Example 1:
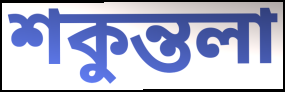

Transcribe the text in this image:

শকুন্তলা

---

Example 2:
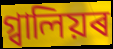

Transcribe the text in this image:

গ্বালিয়ৰ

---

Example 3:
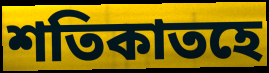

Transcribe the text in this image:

শতিকাতহে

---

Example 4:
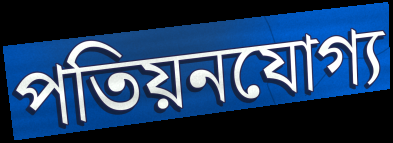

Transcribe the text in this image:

পতিয়নযোগ্য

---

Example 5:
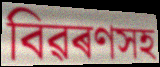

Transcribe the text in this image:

বিৱৰণসহ